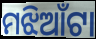
ମଝିଆଁଟା